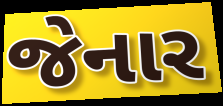
જેનાર